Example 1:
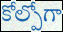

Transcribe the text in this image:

కోల్పోగా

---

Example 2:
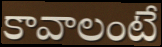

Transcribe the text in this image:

కావాలంటే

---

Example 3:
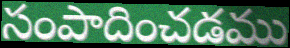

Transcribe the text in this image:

సంపాదించడము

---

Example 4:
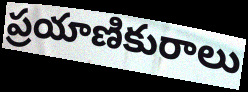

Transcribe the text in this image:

ప్రయాణికురాలు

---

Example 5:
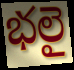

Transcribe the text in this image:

భలై